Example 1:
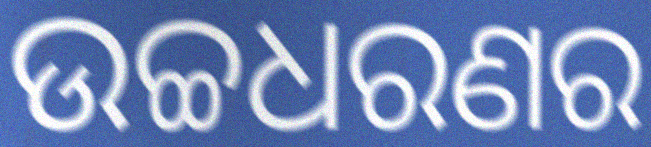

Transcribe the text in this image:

ଉଚ୍ଚଧରଣର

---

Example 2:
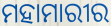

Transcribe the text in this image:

ମହାମାରୀର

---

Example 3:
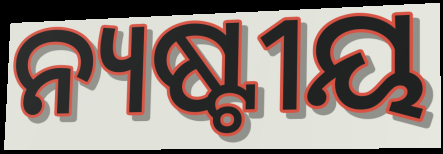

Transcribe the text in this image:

ନ୍ୟଷ୍ଟୀୟ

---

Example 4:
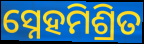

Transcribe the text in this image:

ସ୍ନେହମିଶ୍ରିତ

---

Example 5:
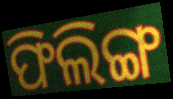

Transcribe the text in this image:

ଫିଲିଙ୍ଗ